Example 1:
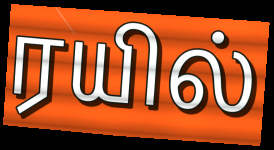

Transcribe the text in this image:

ரயில்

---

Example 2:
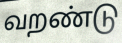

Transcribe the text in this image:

வறண்டு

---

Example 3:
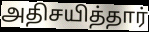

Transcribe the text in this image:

அதிசயித்தார்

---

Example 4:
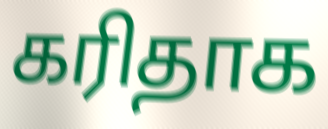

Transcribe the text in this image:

கரிதாக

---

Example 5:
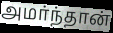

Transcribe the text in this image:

அமர்ந்தான்